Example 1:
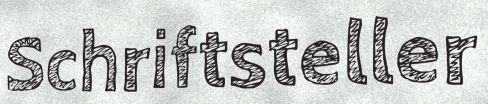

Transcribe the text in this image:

Schriftsteller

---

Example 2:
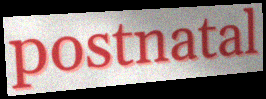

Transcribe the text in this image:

postnatal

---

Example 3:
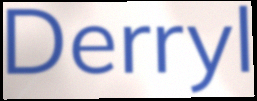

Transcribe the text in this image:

Derryl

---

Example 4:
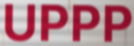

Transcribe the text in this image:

UPPP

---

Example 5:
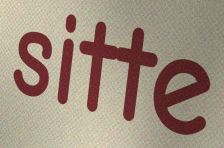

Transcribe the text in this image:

sitte